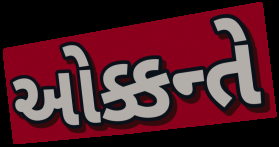
ઓક્કન્તે